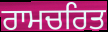
ਰਾਮਚਰਿਤ